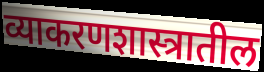
व्याकरणशास्त्रातील